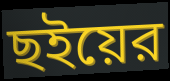
ছইয়ের